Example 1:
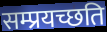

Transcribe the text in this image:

सम्प्रयच्छति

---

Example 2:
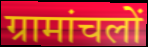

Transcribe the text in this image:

ग्रामांचलों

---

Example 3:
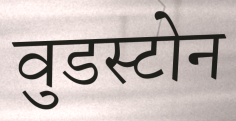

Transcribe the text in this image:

वुडस्टोन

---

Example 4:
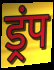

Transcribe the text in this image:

ड्रंप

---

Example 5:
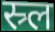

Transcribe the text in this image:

स्र्ल